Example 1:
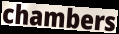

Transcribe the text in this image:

chambers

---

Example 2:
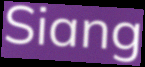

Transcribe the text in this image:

Siang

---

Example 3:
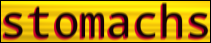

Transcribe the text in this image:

stomachs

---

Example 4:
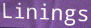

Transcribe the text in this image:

Linings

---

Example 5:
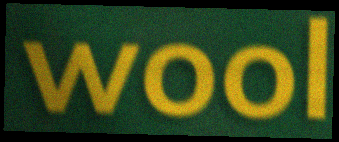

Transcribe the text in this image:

wool